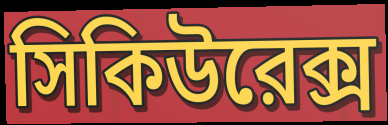
সিকিউরেক্স